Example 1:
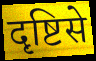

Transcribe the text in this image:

दृष्टिसे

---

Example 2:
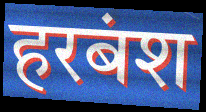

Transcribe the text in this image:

हरबंश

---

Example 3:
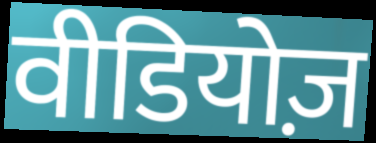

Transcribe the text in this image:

वीडियोज़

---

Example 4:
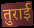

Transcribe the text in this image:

तुराई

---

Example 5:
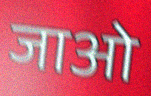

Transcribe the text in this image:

जाओ